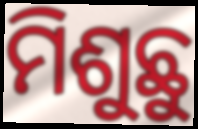
ମିଶୁଛୁ